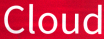
Cloud